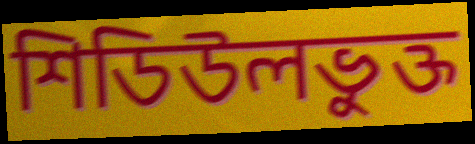
শিডিউলভুক্ত